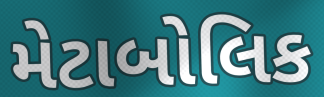
મેટાબોલિક